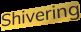
Shivering